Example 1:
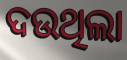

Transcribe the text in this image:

ଦଉଥିଲା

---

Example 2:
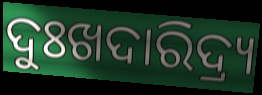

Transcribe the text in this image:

ଦୁଃଖଦାରିଦ୍ର୍ୟ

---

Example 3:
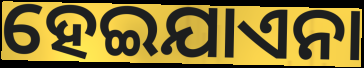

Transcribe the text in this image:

ହେଇଯାଏନା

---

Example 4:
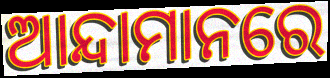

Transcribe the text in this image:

ଆନ୍ଦାମାନରେ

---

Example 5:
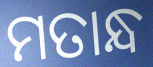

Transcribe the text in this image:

ମତାନ୍ଧ